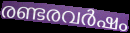
രണ്ടരവർഷം